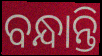
ବନ୍ଧାନ୍ତି